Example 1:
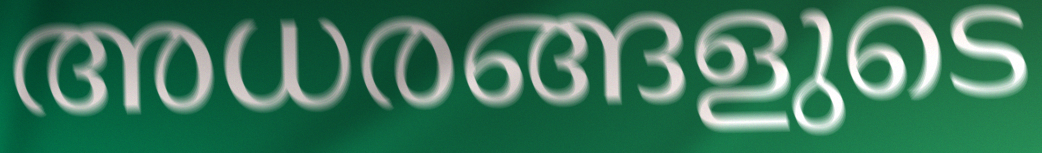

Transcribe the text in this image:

അധരങ്ങളുടെ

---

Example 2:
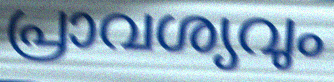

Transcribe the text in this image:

പ്രാവശ്യവും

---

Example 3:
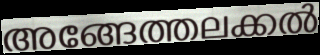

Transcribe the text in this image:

അങ്ങേത്തലക്കൽ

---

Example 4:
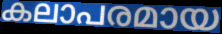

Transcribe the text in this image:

കലാപരമായ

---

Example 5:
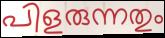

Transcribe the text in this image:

പിളരുന്നതും